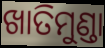
ଖାତିମୁଣ୍ଡା